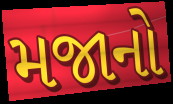
મજાનો